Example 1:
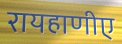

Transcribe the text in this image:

रायहाणीए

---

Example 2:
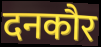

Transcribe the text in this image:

दनकौर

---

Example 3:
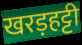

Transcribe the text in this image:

खरड़हट्टी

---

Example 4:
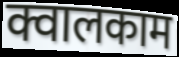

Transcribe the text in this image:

क्वालकाम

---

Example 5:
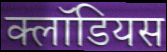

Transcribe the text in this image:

क्लॉडियस